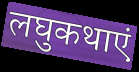
लघुकथाएं